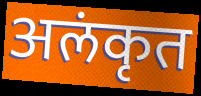
अलंकृत